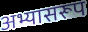
अभ्यासरूप